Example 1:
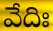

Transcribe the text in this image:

వేదిః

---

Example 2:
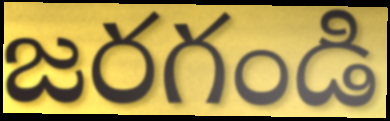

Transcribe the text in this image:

జరగండి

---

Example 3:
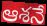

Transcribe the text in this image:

ఆశనే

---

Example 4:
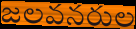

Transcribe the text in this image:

జలవనరుల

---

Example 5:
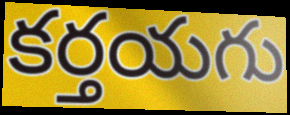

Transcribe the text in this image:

కర్తయగు